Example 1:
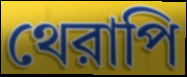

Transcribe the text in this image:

থেরাপি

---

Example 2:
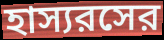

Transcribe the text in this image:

হাস্যরসের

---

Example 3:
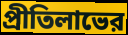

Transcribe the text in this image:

প্রীতিলাভের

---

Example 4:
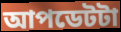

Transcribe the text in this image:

আপডেটটা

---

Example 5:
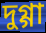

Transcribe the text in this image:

দুগ্গা